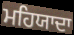
ਮਹਿਯਾਦਾ